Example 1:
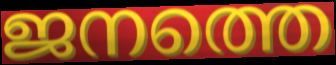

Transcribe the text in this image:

ജനത്തെ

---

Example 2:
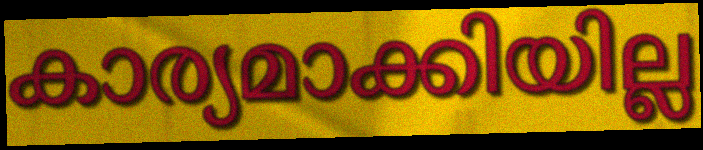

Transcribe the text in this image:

കാര്യമാക്കിയില്ല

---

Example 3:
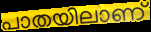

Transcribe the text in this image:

പാതയിലാണ്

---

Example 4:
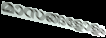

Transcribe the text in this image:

മാസങ്ങളോളം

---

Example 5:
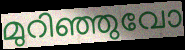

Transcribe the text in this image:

മുറിഞ്ഞുവോ